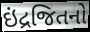
ઇંદ્રજિતનો